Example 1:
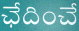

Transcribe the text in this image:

ఛేదించే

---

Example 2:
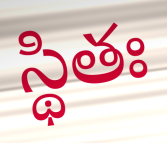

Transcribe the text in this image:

స్థితః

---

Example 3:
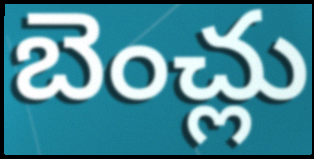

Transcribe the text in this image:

బెంచ్లు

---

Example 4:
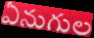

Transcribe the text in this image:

ఏనుగుల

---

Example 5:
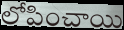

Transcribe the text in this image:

లోపించాయి